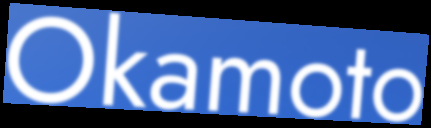
Okamoto